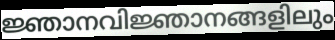
ജ്ഞാനവിജ്ഞാനങ്ങളിലും